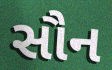
સૌન